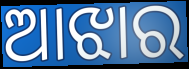
ଆଝାର